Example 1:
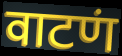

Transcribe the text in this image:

वाटणं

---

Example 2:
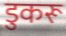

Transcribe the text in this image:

डुकरू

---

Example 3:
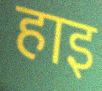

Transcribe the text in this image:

हाइ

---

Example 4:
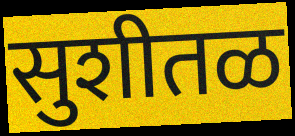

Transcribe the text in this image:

सुशीतळ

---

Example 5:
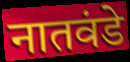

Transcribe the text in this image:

नातवंडे